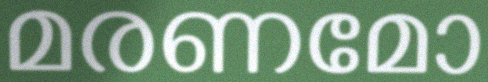
മരണമോ